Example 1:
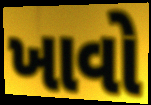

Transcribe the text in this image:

ખાવો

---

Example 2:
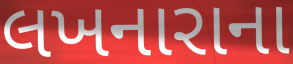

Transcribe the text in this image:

લખનારાના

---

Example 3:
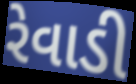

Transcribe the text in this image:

રેવાડી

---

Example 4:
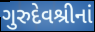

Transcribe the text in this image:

ગુરુદેવશ્રીનાં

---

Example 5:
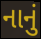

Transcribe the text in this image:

નાનું